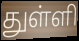
துள்ளி